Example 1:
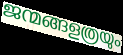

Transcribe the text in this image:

ജന്മങ്ങളത്രയും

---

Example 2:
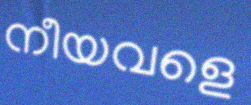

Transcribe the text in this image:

നീയവളെ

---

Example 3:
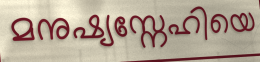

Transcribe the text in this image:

മനുഷ്യസ്നേഹിയെ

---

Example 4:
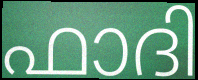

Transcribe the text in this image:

ഫാദി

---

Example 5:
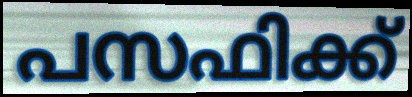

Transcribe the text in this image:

പസഫിക്ക്